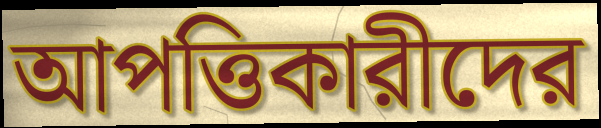
আপত্তিকারীদের